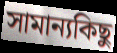
সামান্যকিছু